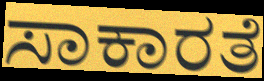
ಸಾಕಾರತೆ